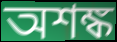
অশঙ্ক